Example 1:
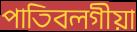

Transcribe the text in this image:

পাতিবলগীয়া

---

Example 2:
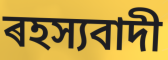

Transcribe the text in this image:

ৰহস্যবাদী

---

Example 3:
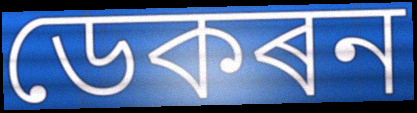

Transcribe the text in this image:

ডেকৰন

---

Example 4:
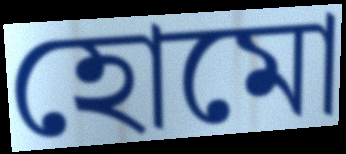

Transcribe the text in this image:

হোমো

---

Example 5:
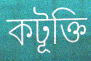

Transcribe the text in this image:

কটূক্তি